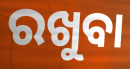
ରଖୁବା